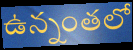
ఉన్నంతలో